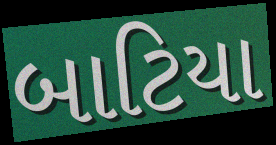
બાટિયા